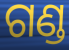
ଗଣ୍ଡ